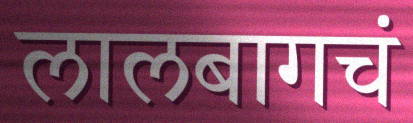
लालबागचं